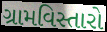
ગ્રામવિસ્તારો